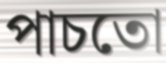
পাচতো